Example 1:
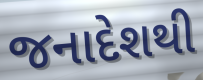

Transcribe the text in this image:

જનાદેશથી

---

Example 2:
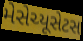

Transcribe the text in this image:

મેસેચ્યૂસેટસ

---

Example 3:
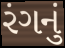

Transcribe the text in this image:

રંગનું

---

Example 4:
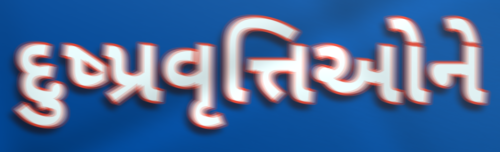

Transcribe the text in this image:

દુષ્પ્રવૃત્તિઓને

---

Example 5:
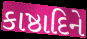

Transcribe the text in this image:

કાષ્ઠાદિને